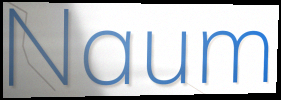
Naum